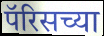
पॅरिसच्या